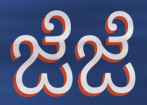
ಜೆಜೆ